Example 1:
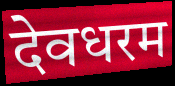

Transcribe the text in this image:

देवधरम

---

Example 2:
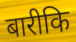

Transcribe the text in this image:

बारीकि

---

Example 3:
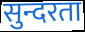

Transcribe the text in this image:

सुन्दरता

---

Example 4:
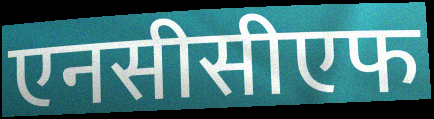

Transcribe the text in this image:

एनसीसीएफ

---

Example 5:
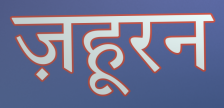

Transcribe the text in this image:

ज़हूरन